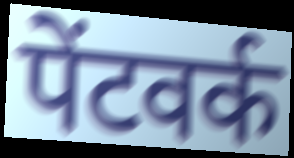
पेंटवर्क